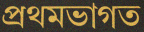
প্ৰথমভাগত